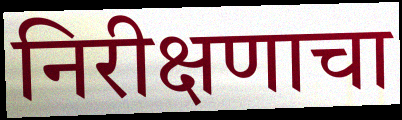
निरीक्षणाचा